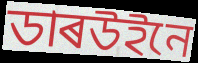
ডাৰউইনে